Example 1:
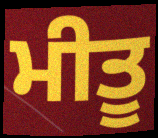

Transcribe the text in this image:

ਮੀਤੂ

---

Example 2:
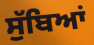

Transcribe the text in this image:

ਸੁੱਬਿਆਂ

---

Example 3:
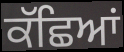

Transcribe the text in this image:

ਕੱਛਿਆਂ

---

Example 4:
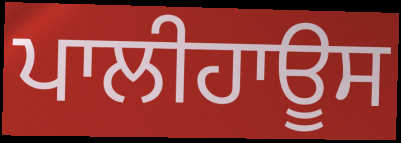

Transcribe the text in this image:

ਪਾਲੀਹਾਊਸ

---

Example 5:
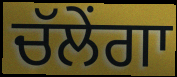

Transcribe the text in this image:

ਚੱਲੇਂਗਾ